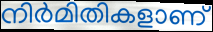
നിർമിതികളാണ്